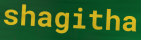
shagitha